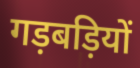
गड़बड़ियों